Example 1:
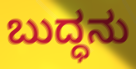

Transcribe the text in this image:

ಬುದ್ಧನು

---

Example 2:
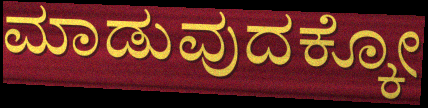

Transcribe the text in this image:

ಮಾಡುವುದಕ್ಕೋ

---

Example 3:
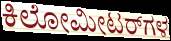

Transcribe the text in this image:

ಕಿಲೋಮೀಟರ್‌ಗಳ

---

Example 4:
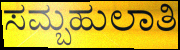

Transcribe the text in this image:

ಸಮ್ಬಹುಲಾತಿ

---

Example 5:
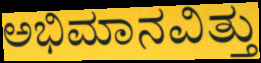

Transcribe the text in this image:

ಅಭಿಮಾನವಿತ್ತು